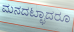
ಮನದಟ್ಟಾದರೂ